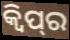
କ୍ଵିପ୍‌ର